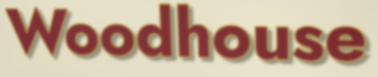
Woodhouse